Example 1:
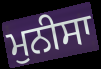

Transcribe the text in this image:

ਮੁਨੀਸਾ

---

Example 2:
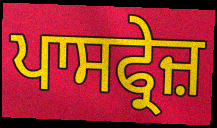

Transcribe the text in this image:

ਪਾਸਫ੍ਰੇਜ਼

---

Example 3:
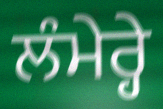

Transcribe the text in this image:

ਲੰਮੇਰ੍ਹੇ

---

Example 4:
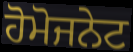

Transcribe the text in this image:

ਹੋਮੋਜਨੇਟ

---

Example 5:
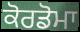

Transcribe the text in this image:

ਕੋਰਡੋਮਾ